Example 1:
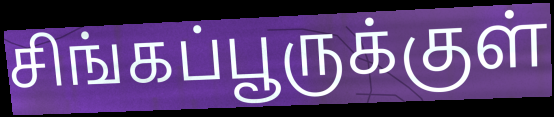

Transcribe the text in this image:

சிங்கப்பூருக்குள்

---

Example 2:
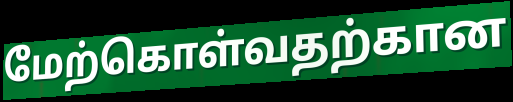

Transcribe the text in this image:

மேற்கொள்வதற்கான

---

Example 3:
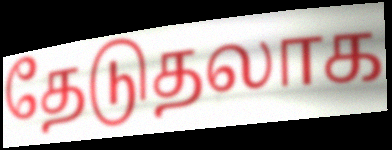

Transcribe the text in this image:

தேடுதலாக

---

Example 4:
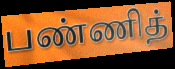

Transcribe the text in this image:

பண்ணித்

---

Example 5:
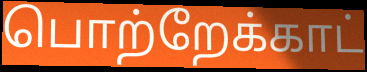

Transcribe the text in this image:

பொற்றேக்காட்